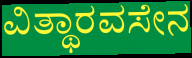
ವಿತ್ಥಾರವಸೇನ